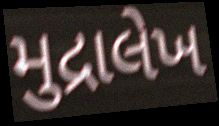
મુદ્રાલેખ